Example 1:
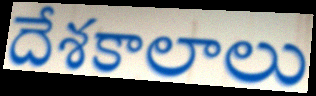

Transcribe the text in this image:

దేశకాలాలు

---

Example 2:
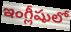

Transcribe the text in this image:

ఇంగ్లీషులో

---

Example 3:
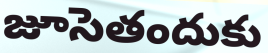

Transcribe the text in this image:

జూసెతందుకు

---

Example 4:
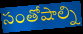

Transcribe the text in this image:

సంతోషాల్ని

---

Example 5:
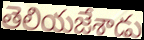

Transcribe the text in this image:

తెలియజేశాడు